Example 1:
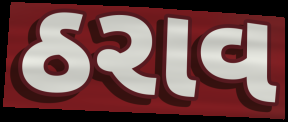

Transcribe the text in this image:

ઠરાવ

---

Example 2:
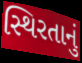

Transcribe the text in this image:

સ્થિરતાનું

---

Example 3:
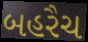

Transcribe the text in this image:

બહરૈચ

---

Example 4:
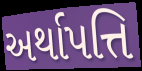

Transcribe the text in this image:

અર્થાપત્તિ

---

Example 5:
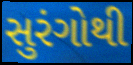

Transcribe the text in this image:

સુરંગોથી